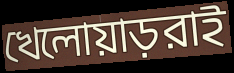
খেলোয়াড়রাই